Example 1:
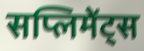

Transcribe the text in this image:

सप्लिमेंट्स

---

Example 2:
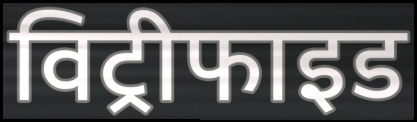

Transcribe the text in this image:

विट्रीफाइड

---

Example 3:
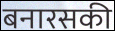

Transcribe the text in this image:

बनारसकी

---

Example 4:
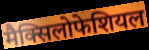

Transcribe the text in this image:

मैक्सिलोफेशियल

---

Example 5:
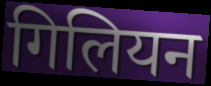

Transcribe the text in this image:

गिलियन